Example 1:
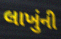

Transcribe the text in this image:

લાખુંની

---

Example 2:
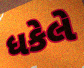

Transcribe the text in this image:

ધકેલે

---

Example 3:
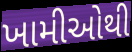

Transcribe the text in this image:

ખામીઓથી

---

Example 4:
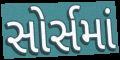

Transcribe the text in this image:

સોર્સમાં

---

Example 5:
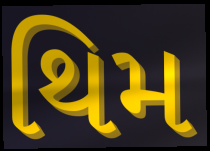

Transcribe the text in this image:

થિમ